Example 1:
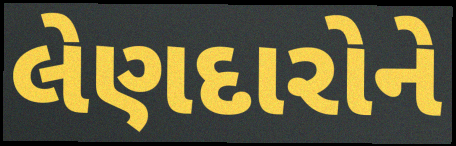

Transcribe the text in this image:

લેણદારોને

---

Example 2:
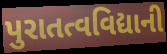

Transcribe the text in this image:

પુરાતત્વવિદ્યાની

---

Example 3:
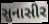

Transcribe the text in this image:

સુનાસીર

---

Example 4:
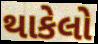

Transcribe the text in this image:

થાકેલો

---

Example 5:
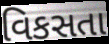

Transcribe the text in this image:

વિકસતા